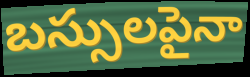
బస్సులపైనా